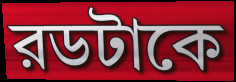
রডটাকে